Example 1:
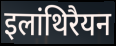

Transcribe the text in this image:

इलांथिरैयन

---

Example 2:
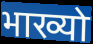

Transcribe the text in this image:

भाख्यो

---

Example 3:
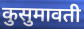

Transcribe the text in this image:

कुसुमावती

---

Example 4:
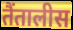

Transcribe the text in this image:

तैंतालीस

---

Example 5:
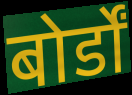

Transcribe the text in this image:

बोर्डों